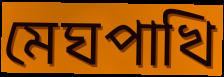
মেঘপাখি